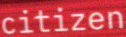
citizen